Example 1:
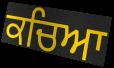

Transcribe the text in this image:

ਕਚਿਆ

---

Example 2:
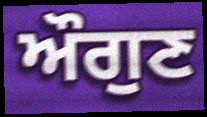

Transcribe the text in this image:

ਔਗੁਣ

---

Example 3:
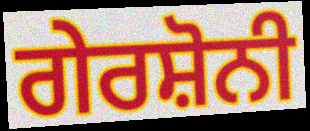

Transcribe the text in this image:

ਗੇਰਸ਼ੋਨੀ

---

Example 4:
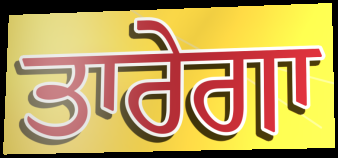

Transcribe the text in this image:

ਤਾਰੇਗਾ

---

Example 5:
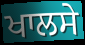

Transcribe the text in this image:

ਖਾਲਸੇ